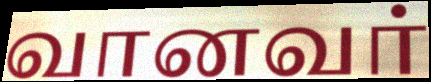
வானவர்